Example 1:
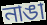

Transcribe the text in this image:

নাঙা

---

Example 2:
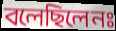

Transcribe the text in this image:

বলেছিলেনঃ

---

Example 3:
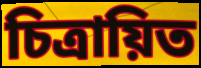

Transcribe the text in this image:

চিত্রায়িত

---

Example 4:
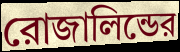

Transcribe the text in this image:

রোজালিন্ডের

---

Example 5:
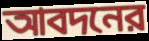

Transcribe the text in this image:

আবদনের